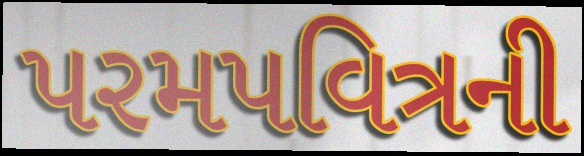
પરમપવિત્રની